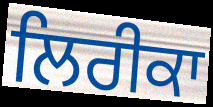
ਲਿਰੀਕਾ